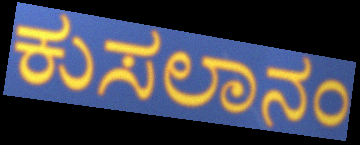
ಕುಸಲಾನಂ